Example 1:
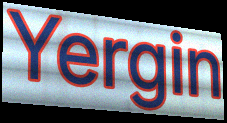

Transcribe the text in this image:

Yergin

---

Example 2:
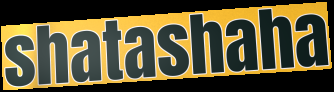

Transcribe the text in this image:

shatashaha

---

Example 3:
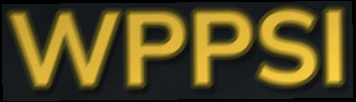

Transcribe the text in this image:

WPPSI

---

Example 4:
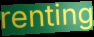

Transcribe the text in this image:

renting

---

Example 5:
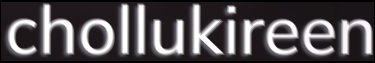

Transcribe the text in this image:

chollukireen